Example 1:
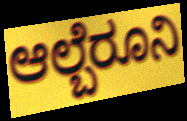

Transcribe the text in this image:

ಆಲ್ಬೆರೂನಿ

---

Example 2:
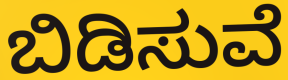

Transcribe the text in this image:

ಬಿಡಿಸುವೆ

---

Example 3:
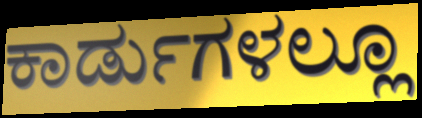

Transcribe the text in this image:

ಕಾರ್ಡುಗಳಲ್ಲೂ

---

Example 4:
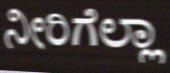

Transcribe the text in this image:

ನೀರಿಗೆಲ್ಲಾ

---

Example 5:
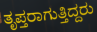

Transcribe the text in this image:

ತೃಪ್ತರಾಗುತ್ತಿದ್ದರು